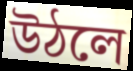
উঠলে